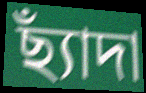
ছ্যাঁদা